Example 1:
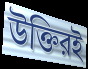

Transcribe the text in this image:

উক্তিরই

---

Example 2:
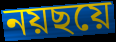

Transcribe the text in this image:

নয়ছয়ে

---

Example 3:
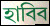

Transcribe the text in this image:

হাবিব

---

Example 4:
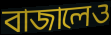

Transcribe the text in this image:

বাজালেও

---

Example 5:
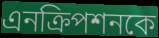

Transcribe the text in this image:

এনক্রিপশনকে